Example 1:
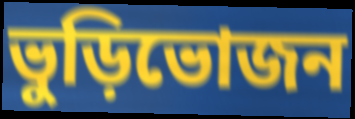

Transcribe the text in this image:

ভুড়িভোজন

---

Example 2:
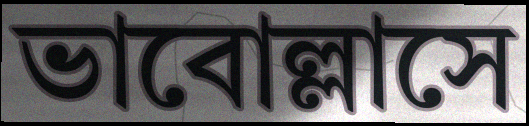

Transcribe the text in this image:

ভাবোল্লাসে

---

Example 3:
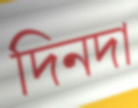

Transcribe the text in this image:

দিনদা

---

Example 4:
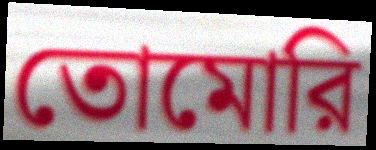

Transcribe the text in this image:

তোমোরি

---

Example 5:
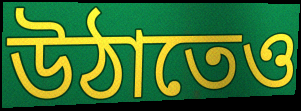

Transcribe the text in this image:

উঠাতেও